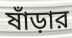
ষাঁড়ার